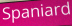
Spaniard